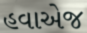
હવાએજ